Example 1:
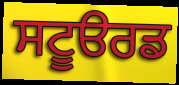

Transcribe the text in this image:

ਸਟੂੳਰਡ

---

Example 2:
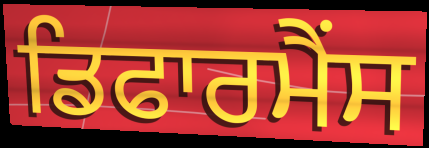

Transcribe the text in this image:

ਡਿਫਾਰਮੈਂਸ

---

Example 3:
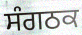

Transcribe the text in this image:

ਸੰਗਠਕ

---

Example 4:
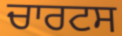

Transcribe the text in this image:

ਚਾਰਟਸ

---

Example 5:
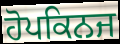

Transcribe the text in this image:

ਹੋਪਕਿਨਜ